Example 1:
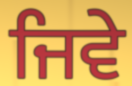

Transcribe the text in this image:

ਜਿਵੇ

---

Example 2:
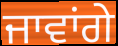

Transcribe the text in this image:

ਜਾਵਾਂਗੇ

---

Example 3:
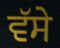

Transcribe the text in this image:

ਵੱਸੇ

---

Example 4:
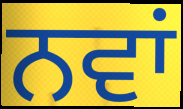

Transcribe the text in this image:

ਨਵਾਂ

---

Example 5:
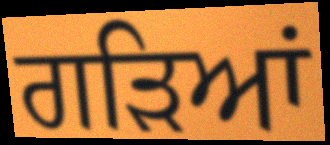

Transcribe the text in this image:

ਗੜਿਆਂ